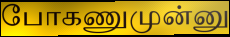
போகணுமுன்னு